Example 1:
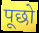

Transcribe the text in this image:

पूछो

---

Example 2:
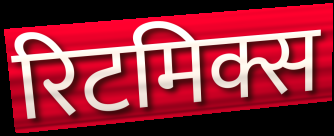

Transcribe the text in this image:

रिटमिक्स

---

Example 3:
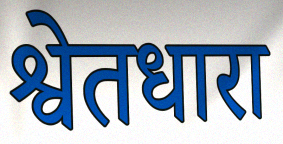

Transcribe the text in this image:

श्वेतधारा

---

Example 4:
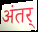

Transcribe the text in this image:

अंतर्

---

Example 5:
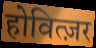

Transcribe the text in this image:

होवित्ज़र